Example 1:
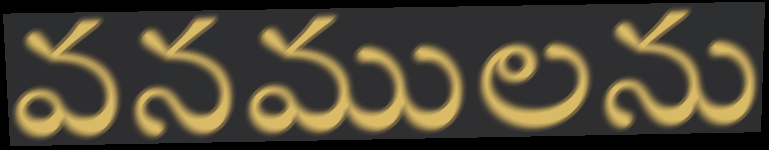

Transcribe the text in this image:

వనములను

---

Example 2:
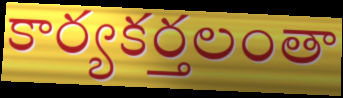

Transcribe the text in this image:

కార్యకర్తలంతా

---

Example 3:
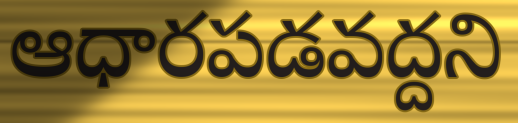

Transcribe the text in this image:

ఆధారపడవద్దని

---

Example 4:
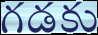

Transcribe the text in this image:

గడకు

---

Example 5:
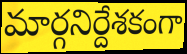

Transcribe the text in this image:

మార్గనిర్దేశకంగా